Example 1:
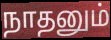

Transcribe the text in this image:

நாதனும்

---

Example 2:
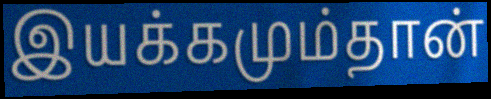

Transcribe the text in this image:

இயக்கமும்தான்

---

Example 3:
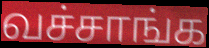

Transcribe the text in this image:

வச்சாங்க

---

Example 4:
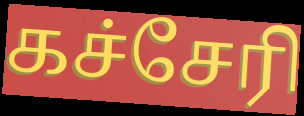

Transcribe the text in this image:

கச்சேரி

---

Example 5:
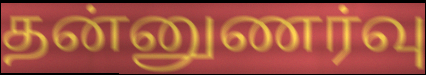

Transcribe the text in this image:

தன்னுணர்வு